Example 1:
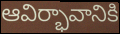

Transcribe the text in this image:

ఆవిర్భావానికి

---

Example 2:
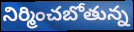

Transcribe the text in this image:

నిర్మించబోతున్న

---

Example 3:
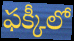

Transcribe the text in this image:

ఫక్కీలో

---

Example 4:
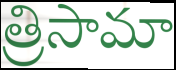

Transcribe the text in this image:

త్రిసామా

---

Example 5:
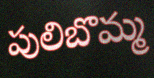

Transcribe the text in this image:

పులిబొమ్మ